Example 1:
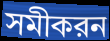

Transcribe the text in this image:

সমীকরন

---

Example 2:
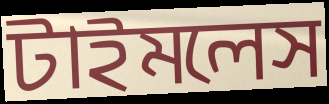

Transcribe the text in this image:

টাইমলেস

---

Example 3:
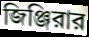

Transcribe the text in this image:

জিঞ্জিরার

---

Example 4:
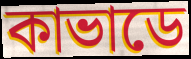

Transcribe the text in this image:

কাভাডে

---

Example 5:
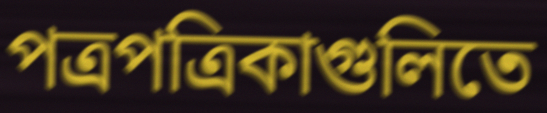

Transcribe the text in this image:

পত্রপত্রিকাগুলিতে